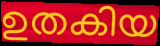
ഉതകിയ